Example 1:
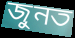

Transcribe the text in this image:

জুনত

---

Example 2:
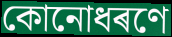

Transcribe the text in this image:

কোনোধৰণে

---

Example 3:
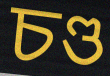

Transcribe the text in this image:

চণ্ড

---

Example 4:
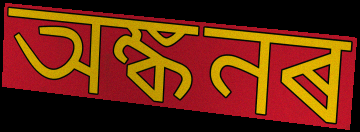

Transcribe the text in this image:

অঙ্কনৰ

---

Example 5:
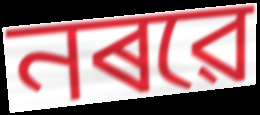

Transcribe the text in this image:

নৰৱে